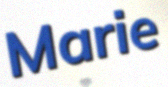
Marie